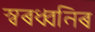
স্বৰধ্বনিৰ